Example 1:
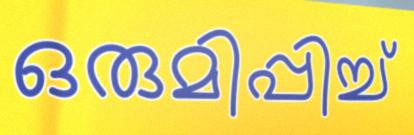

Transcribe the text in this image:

ഒരുമിപ്പിച്ച്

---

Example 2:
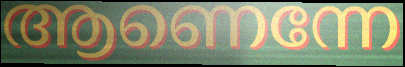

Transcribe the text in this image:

ആണെന്നേ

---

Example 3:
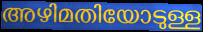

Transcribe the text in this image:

അഴിമതിയോടുള്ള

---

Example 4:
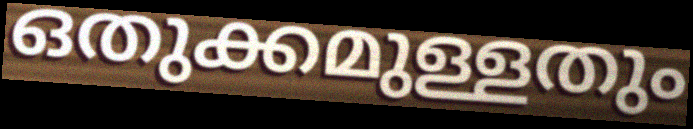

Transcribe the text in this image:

ഒതുക്കമുള്ളതും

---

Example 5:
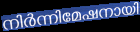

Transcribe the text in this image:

നിർന്നിമേഷനായി